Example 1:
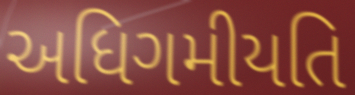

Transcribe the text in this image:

અધિગમીયતિ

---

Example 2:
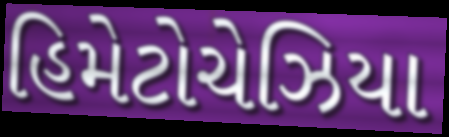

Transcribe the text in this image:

હિમેટોચેઝિયા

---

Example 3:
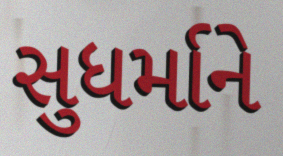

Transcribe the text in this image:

સુધર્માને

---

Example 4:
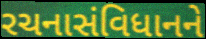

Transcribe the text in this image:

રચનાસંવિધાનને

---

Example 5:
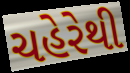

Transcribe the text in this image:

ચહેરેથી